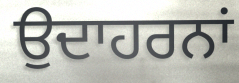
ਉਦਾਹਰਨਾਂ